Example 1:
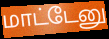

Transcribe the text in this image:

மாட்டேனு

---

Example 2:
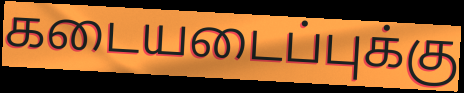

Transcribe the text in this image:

கடையடைப்புக்கு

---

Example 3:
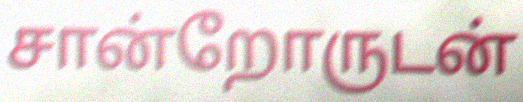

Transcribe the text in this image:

சான்றோருடன்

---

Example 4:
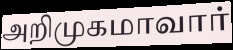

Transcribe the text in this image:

அறிமுகமாவார்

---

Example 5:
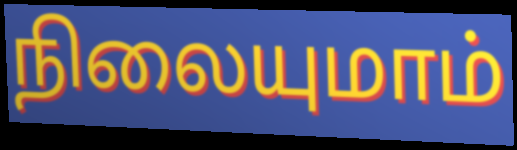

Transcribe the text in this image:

நிலையுமாம்